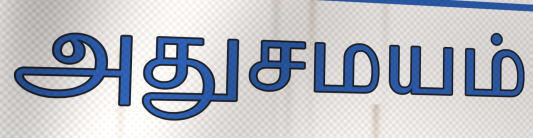
அதுசமயம்